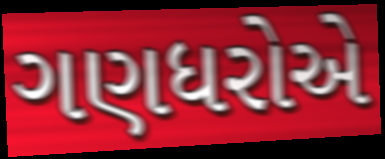
ગણધરોએ